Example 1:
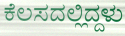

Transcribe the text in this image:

ಕೆಲಸದಲ್ಲಿದ್ದಳು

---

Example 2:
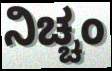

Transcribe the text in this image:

ನಿಚ್ಚಂ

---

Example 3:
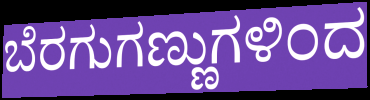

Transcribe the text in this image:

ಬೆರಗುಗಣ್ಣುಗಳಿಂದ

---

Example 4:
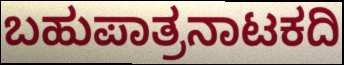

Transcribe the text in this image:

ಬಹುಪಾತ್ರನಾಟಕದಿ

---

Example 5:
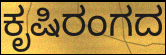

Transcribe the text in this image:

ಕೃಷಿರಂಗದ